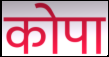
कोपा